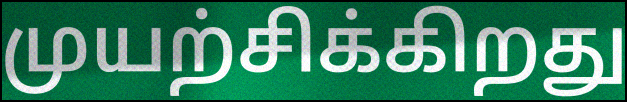
முயற்சிக்கிறது